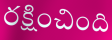
రక్షించింది